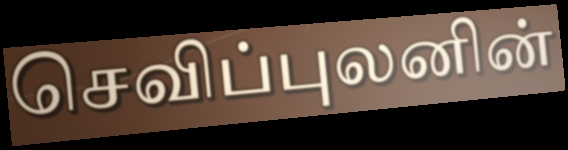
செவிப்புலனின்